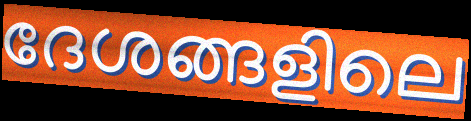
ദേശങ്ങളിലെ